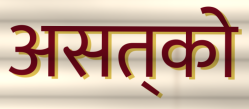
असत्‌को